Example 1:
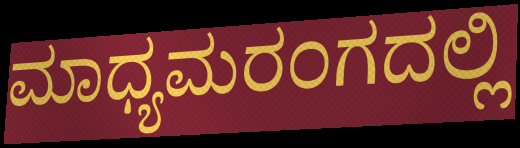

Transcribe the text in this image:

ಮಾಧ್ಯಮರಂಗದಲ್ಲಿ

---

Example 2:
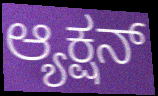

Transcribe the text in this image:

ಆ್ಯಕ್ಷನ್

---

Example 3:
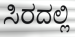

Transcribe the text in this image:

ಸಿರದಲ್ಲಿ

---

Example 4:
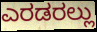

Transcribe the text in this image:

ಎರಡರಲ್ಲು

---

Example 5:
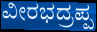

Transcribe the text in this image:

ವೀರಭದ್ರಪ್ಪ